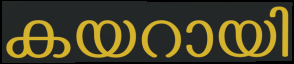
കയറായി